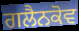
ਗਲੈਨਕੋਵ